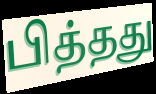
பித்தது